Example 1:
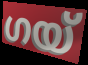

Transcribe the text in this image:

ഗയ്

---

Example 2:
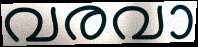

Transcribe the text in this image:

വരവാ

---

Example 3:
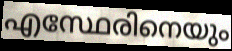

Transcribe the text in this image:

എസ്ഥേരിനെയും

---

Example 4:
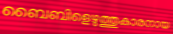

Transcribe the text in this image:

ബൈബിളെഴുത്തുകാരനായ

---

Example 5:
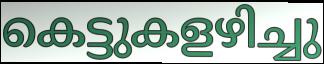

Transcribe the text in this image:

കെട്ടുകളഴിച്ചു